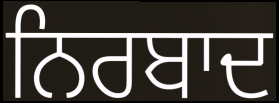
ਨਿਰਬਾਦ